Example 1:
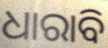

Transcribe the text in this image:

ଧାରାବି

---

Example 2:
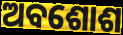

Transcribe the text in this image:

ଅବଶୋଶ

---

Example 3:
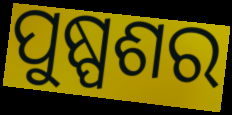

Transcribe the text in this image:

ପୁଷ୍ପଶର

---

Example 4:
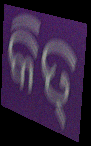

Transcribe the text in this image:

କିତ୍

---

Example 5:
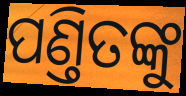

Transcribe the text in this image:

ପଣ୍ତିତଙ୍କୁ